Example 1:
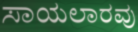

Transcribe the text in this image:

ಸಾಯಲಾರವು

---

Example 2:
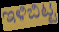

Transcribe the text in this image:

ಇಳಿಬಿಟ್ಟ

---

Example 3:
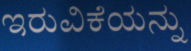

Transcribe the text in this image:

ಇರುವಿಕೆಯನ್ನು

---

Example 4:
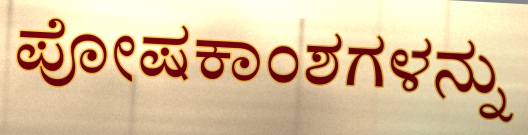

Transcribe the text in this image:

ಪೋಷಕಾಂಶಗಳನ್ನು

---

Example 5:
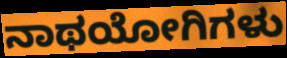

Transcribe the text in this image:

ನಾಥಯೋಗಿಗಳು